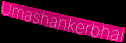
Umashankerbhai